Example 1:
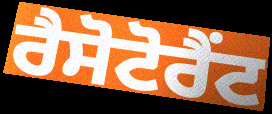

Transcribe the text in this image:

ਰੈਸੋਟੋਰੈਂਟ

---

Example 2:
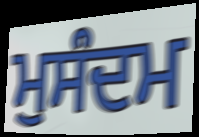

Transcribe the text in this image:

ਮੁਸੰਦਮ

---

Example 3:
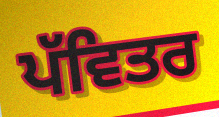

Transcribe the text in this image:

ਪੱਵਿਤਰ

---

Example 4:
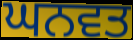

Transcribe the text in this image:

ਘਨਵਤ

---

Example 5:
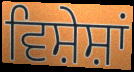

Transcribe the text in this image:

ਵਿਸ਼ੇਸ਼ਾਂ